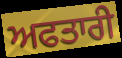
ਅਫਤਾਰੀ